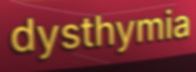
dysthymia